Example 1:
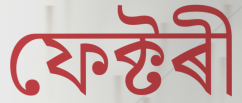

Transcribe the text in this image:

ফেক্টৰী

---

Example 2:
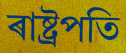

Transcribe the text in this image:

ৰাষ্ট্ৰপতি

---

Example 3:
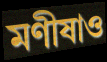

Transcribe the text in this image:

মণীষাও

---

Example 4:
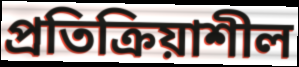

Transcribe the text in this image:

প্ৰতিক্ৰিয়াশীল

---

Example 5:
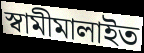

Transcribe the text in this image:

স্বামীমালাইত